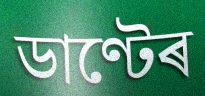
ডাণ্টেৰ